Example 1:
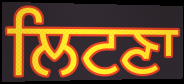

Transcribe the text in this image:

ਲਿਟਣਾ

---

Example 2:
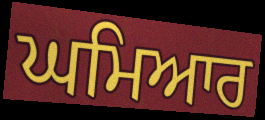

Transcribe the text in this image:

ਘਮਿਆਰ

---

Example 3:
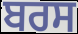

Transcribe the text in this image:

ਬਰਸ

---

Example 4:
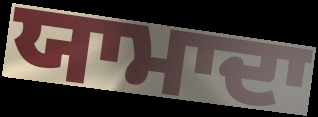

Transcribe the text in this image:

ਯਾਮਾਦਾ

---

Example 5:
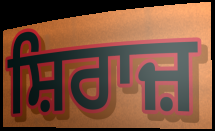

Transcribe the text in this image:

ਸ਼ਿਰਾਜ਼